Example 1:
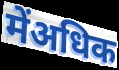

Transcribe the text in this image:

मेंअधिक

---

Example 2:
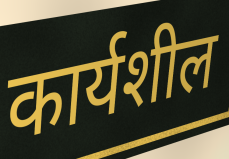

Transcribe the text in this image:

कार्यशील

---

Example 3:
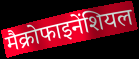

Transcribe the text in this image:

मैक्रोफाइनेंशियल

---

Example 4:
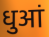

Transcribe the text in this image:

धुआं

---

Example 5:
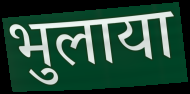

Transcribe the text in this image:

भुलाया